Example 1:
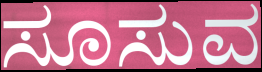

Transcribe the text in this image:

ಸೂಸುವ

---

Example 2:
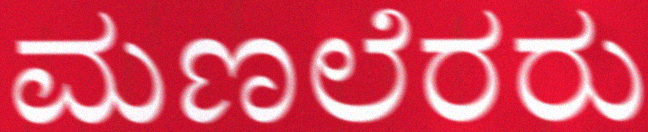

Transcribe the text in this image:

ಮಣಲೆರರು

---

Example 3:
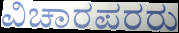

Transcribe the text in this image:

ವಿಚಾರಪರರು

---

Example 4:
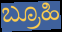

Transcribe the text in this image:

ಬ್ರೂಹಿ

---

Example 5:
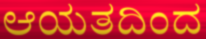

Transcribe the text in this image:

ಆಯತದಿಂದ